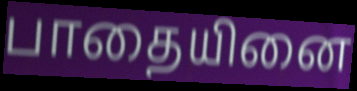
பாதையினை